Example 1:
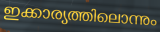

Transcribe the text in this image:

ഇക്കാര്യത്തിലൊന്നും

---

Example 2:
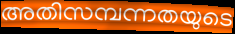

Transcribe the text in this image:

അതിസമ്പന്നതയുടെ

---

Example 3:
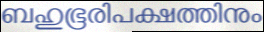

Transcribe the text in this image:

ബഹുഭൂരിപക്ഷത്തിനും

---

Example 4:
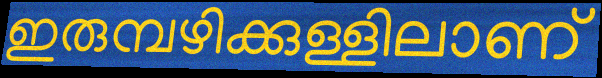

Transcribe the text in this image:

ഇരുമ്പഴിക്കുള്ളിലാണ്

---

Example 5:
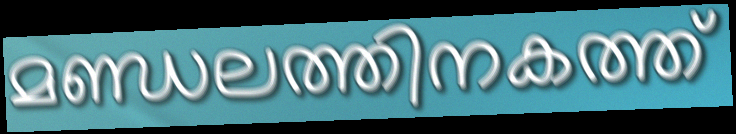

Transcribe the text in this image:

മണ്ഡലത്തിനകത്ത്